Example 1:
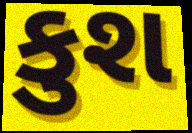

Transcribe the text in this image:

કુશ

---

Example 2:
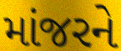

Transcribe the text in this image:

માંજરને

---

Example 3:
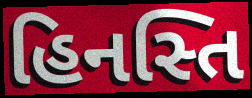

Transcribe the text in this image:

હિનસ્તિ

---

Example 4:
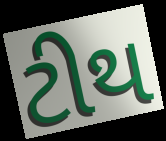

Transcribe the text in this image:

ટીથ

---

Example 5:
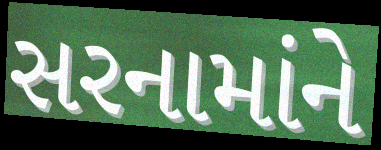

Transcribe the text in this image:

સરનામાંને